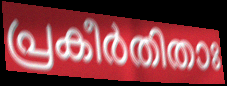
പ്രകീർതിതാഃ